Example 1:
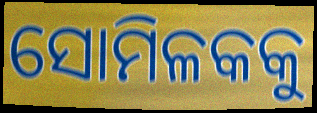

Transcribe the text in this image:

ସୋମିଳକକୁ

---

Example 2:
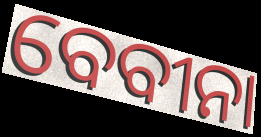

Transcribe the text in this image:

ବେବୀନା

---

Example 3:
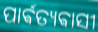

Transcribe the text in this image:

ପାର୍ଵତ୍ୟଵାସୀ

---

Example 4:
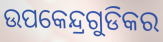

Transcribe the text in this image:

ଉପକେନ୍ଦ୍ରଗୁଡିକର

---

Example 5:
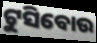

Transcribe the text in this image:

ଟୁସିବୋଉ